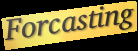
Forcasting